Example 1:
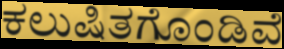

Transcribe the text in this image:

ಕಲುಷಿತಗೊಂಡಿವೆ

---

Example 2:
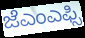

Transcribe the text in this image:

ಜೆಎಂಎಫ್ಸಿ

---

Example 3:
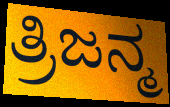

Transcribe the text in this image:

ತ್ರಿಜನ್ಮ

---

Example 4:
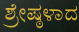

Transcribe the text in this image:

ಶ್ರೇಷ್ಠಳಾದ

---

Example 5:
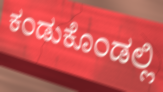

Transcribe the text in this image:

ಕಂಡುಕೊಂಡಲ್ಲಿ